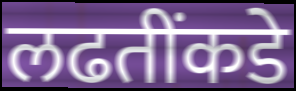
लढतींकडे